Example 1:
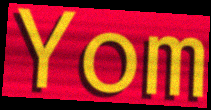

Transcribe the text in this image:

Yom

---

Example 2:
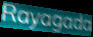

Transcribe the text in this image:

Rayagada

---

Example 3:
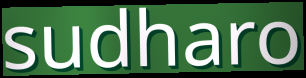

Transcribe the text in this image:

sudharo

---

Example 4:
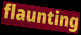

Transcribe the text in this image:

flaunting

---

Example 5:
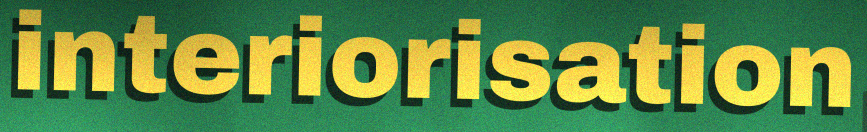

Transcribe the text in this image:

interiorisation